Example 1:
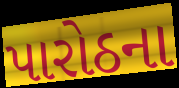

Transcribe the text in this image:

પારોઠના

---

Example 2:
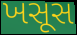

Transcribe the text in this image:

ખસૂસ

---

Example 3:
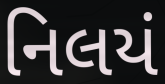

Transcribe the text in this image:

નિલયં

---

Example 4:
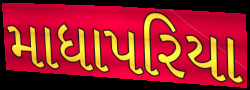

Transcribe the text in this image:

માધાપરિયા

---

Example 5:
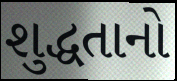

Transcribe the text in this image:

શુદ્ધતાનો